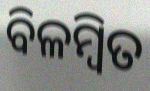
ବିଳମ୍ବିତ